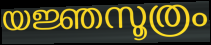
യജ്ഞസൂത്രം